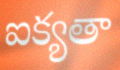
ఐక్యతా